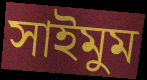
সাইমুম